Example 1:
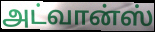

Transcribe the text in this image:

அட்வான்ஸ்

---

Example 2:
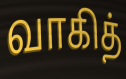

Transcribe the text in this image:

வாகித்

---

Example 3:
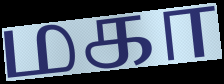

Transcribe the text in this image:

மகா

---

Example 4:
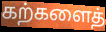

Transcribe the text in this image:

கற்களைத்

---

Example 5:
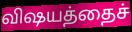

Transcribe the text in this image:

விஷயத்தைச்